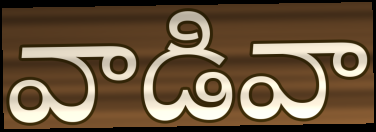
వాడివా